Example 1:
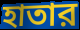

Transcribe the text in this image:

হাতার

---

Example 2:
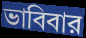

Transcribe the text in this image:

ভাবিবার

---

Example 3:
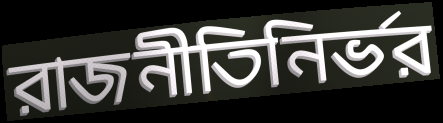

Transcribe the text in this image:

রাজনীতিনির্ভর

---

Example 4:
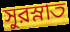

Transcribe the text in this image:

সুরস্নাত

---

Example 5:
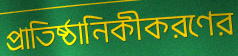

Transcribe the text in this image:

প্রাতিষ্ঠানিকীকরণের